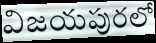
విజయపురలో